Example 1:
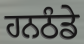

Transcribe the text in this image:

ਹਨਠੰਡੇ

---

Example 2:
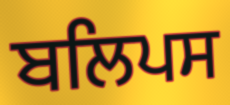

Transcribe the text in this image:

ਬਲਿਪਸ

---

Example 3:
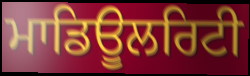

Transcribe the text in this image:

ਮਾਡਿਊਲਰਿਟੀ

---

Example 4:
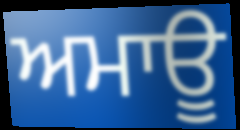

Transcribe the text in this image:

ਅਮਾਊ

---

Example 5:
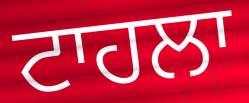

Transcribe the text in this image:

ਟਾਹਲਾ